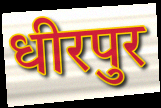
धीरपुर